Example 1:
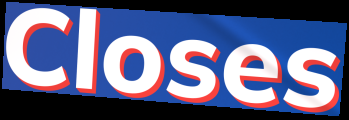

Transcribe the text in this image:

Closes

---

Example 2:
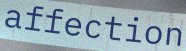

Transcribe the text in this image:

affection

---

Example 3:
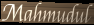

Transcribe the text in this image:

Mahmudul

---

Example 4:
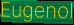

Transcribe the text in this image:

Eugenol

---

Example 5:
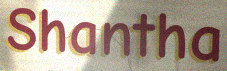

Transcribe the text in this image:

Shantha